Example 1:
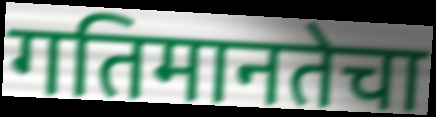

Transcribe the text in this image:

गतिमानतेचा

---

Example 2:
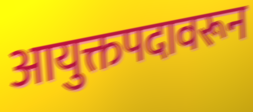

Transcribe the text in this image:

आयुक्तपदावरून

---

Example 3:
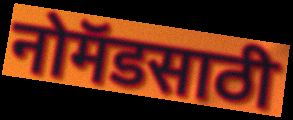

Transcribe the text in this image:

नोमॅडसाठी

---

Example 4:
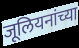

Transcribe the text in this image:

जूलियनांच्या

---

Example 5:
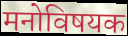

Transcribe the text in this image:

मनोविषयक